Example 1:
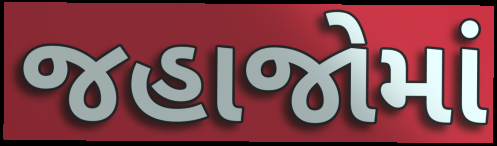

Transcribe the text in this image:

જહાજોમાં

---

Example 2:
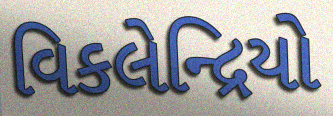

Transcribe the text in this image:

વિકલેન્દ્રિયો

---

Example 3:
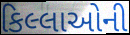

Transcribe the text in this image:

કિલ્લાઓની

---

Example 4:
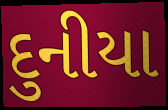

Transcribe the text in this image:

દુનીયા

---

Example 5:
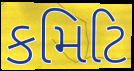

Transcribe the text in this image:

કમિટિ